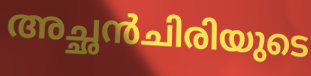
അച്ഛൻചിരിയുടെ